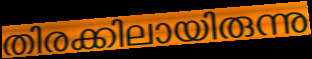
തിരക്കിലായിരുന്നു